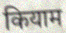
कियाम